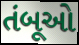
તંબૂઓ